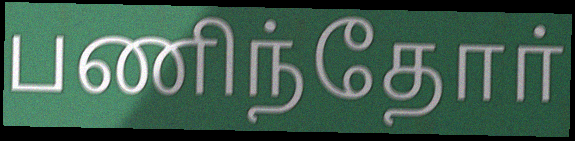
பணிந்தோர்